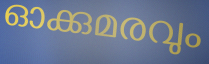
ഓക്കുമരവും